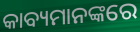
କାବ୍ୟମାନଙ୍କରେ